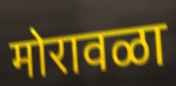
मोरावळा